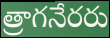
త్రాగనేరరు